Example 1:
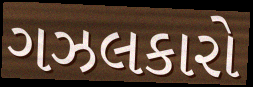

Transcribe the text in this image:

ગઝલકારો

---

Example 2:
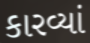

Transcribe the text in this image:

કારવ્યાં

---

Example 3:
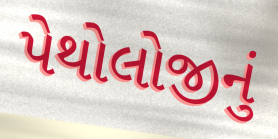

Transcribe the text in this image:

પેથોલોજીનું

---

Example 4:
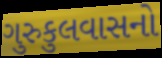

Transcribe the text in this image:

ગુરુકુલવાસનો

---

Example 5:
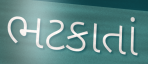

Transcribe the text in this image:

ભટકાતાં